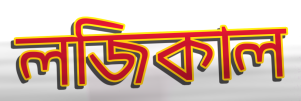
লজিকাল